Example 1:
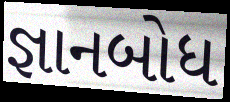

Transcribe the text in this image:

જ્ઞાનબોધ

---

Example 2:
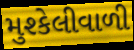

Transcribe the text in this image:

મુશ્કેલીવાળી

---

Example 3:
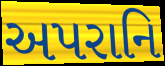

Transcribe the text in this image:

અપરાનિ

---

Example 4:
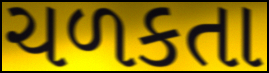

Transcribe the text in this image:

ચળકતા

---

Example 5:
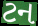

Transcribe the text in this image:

ટન